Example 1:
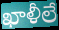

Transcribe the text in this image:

ఖాళీలే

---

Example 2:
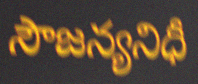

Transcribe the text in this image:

సౌజన్యనిధీ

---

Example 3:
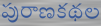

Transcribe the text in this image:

పురాణకథల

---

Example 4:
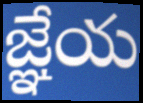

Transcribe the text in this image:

జ్ఞేయ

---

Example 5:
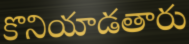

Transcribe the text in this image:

కొనియాడతారు